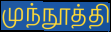
முந்நூத்தி